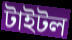
টাইটল